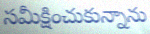
సమీక్షించుకున్నాను